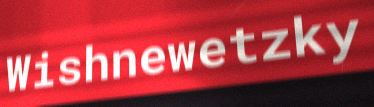
Wishnewetzky